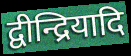
द्वीन्द्रियादि